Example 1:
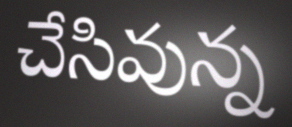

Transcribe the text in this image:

చేసివున్న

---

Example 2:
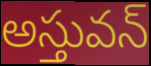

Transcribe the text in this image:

అస్తువన్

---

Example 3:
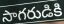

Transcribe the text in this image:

సాగరుడికి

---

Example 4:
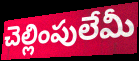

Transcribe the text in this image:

చెల్లింపులేమీ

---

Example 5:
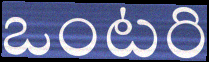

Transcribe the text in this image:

ఒంటరి